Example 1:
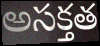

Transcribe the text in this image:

అసక్తత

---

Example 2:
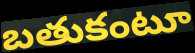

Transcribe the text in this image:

బతుకంటూ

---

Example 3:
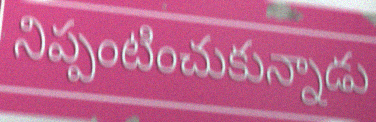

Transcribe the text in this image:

నిప్పంటించుకున్నాడు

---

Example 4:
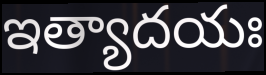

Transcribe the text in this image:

ఇత్యాదయః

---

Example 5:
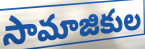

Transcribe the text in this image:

సామాజికుల